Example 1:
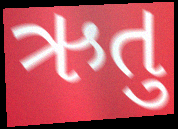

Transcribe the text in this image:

ઋતુ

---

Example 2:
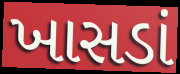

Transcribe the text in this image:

ખાસડાં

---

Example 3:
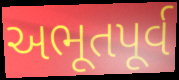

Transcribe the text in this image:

અભૂતપૂર્વ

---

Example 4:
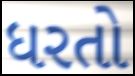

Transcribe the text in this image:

ધરતો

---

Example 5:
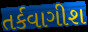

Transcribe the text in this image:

તર્કવાગીશ